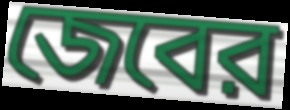
জেবের